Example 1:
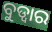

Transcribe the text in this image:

ବୁଡ୍ୱାର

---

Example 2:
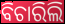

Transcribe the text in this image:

ବିଚାରିଲି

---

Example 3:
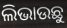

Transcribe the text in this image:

ଲିଭାଉଛୁ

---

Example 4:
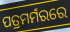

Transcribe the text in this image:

ପତ୍ରମର୍ମରରେ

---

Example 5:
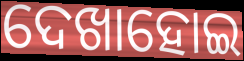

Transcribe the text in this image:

ଦେଖାହୋଇ